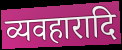
व्यवहारादि